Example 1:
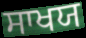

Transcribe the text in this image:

ਸਾਖਯ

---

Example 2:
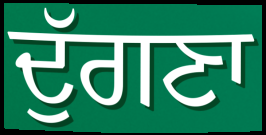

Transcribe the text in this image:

ਦੁੱਗਣਾ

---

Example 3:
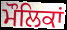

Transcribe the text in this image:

ਮੌਲਿਕਾਂ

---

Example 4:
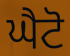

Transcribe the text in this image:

ਘੈਟੋ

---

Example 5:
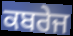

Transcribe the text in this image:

ਕਬਰੇਜ